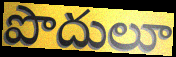
పొదులూ